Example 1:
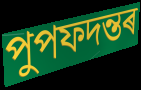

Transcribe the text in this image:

পুপফদন্তৰ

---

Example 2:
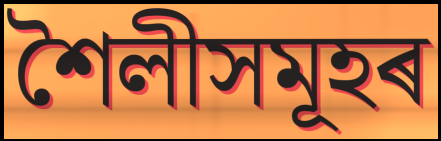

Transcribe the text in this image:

শৈলীসমূহৰ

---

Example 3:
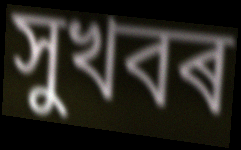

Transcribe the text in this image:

সুখবৰ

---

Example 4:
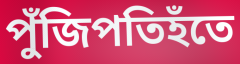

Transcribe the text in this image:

পুঁজিপতিহঁতে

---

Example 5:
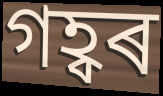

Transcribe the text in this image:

গহ্বৰ